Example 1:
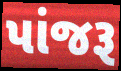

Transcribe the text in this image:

પાંજરૂ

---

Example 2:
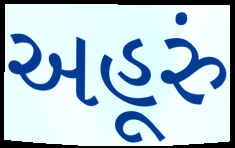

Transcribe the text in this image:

અહૂરું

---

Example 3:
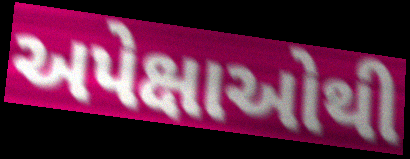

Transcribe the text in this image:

અપેક્ષાઓથી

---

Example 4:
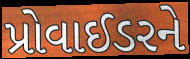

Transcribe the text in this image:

પ્રોવાઈડરને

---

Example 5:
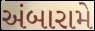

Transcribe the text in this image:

અંબારામે